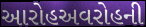
આરોહઅવરોહની